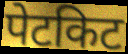
पेटकिट